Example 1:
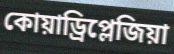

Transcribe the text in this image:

কোয়াড্রিপ্লেজিয়া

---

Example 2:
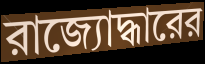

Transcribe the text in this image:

রাজ্যোদ্ধারের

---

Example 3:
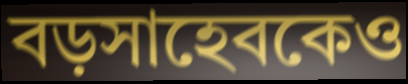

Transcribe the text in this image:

বড়সাহেবকেও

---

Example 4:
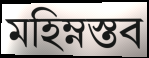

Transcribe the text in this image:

মহিম্নস্তব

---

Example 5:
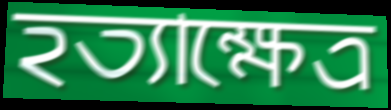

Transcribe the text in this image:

হত্যাক্ষেত্র